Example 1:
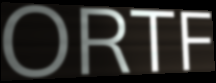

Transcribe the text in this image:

ORTF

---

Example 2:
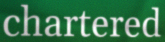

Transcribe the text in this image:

chartered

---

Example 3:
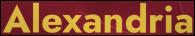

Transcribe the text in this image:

Alexandria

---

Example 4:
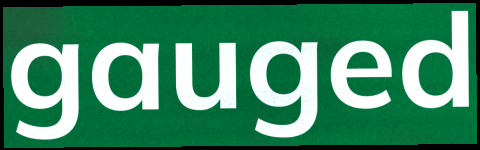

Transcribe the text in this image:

gauged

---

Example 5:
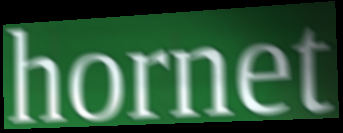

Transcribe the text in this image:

hornet